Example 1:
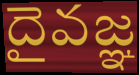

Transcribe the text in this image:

దైవజ్ఞ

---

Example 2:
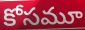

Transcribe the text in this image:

కోసమూ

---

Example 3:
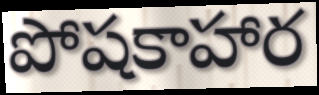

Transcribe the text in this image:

పోషకాహార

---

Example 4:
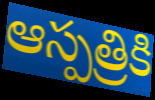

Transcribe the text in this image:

ఆస్పత్రికి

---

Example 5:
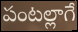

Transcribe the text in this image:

పంటల్లాగే